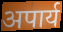
अपार्य